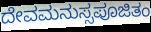
ದೇವಮನುಸ್ಸಪೂಜಿತಂ